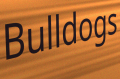
Bulldogs